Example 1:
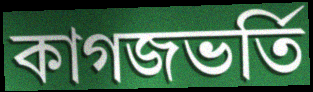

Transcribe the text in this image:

কাগজভর্তি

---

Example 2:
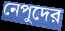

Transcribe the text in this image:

নেপুদের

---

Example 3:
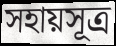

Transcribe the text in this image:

সহায়সূত্র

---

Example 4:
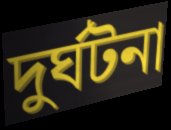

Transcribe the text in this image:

দুর্ঘটনা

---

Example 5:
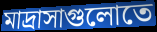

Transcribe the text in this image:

মাদ্রাসাগুলোতে